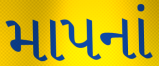
માપનાં